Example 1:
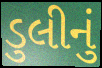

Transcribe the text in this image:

ડુલીનું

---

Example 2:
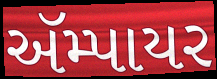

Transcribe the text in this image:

ઍમ્પાયર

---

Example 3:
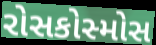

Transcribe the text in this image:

રોસકોસ્મોસ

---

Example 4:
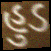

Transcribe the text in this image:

હુડ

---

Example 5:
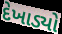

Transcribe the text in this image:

દેખાડ્યો